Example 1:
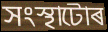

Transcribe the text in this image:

সংস্থাটোৰ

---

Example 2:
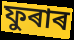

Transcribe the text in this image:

ফুৰাৰ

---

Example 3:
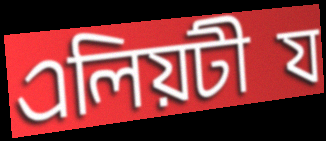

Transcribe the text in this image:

এলিয়টীয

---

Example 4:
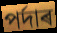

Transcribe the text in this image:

পৰ্দাৰ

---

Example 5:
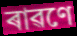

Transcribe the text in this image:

ৰাৱণে